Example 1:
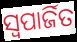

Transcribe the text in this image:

ସ୍ଵପାର୍ଜିତ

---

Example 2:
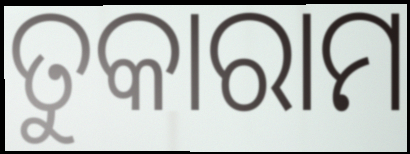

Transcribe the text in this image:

ତୁକାରାମ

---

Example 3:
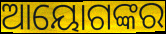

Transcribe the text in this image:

ଆୟୋଗଙ୍କର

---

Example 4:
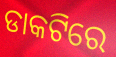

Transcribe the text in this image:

ଡାକଟିରେ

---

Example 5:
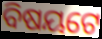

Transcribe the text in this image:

ବିଷୟଟେ